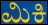
ಮಿಕಿ